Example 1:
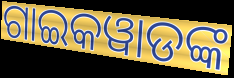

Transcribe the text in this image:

ଗାଇକୱାଡଙ୍କ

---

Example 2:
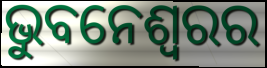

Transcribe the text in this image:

ଭୁବନେଶ୍ଵରର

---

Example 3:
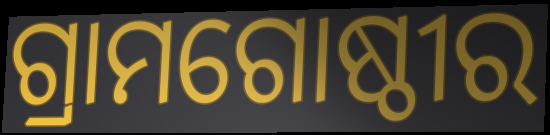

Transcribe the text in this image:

ଗ୍ରାମଗୋଷ୍ଠୀର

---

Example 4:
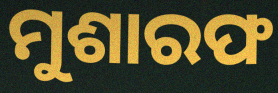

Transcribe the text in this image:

ମୁଶାରଫ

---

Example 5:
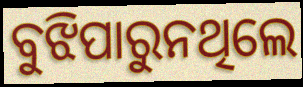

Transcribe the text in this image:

ବୁଝିପାରୁନଥିଲେ